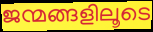
ജന്മങ്ങളിലൂടെ